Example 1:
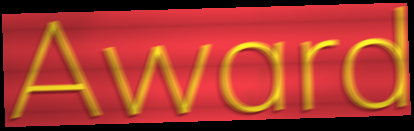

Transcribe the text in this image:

Award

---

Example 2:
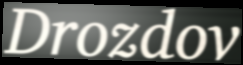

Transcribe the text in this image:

Drozdov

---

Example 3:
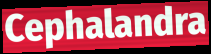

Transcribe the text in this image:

Cephalandra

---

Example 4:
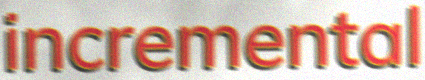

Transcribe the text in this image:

incremental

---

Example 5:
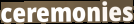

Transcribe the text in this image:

ceremonies